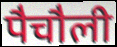
पैचौली